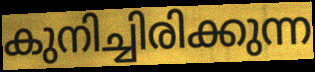
കുനിച്ചിരിക്കുന്ന